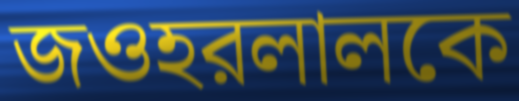
জওহরলালকে